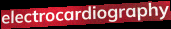
electrocardiography